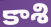
కాశి